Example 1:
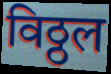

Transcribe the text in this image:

विठ्ठल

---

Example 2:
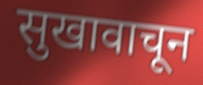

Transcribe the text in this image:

सुखावाचून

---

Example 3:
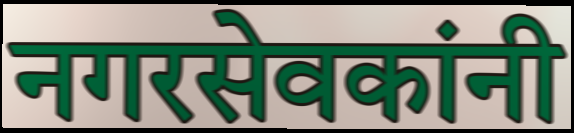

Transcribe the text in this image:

नगरसेवकांनी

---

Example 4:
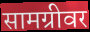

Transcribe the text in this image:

सामग्रीवर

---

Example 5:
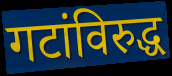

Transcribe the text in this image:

गटांविरुद्ध